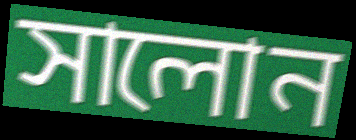
সালোন